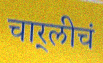
चार्लीचं